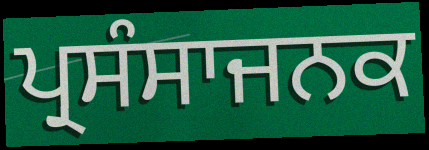
ਪ੍ਰਸੰਸਾਜਨਕ